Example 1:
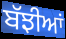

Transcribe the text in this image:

ਬੱਝੀਆਂ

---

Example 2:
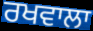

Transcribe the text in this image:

ਰਖਵਾਲਾ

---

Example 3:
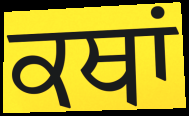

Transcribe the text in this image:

ਕਥਾਂ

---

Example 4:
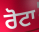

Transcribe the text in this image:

ਰੋਟਾ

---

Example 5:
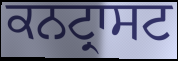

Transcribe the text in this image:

ਕਨਟ੍ਰਾਸਟ